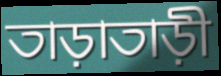
তাড়াতাড়ী